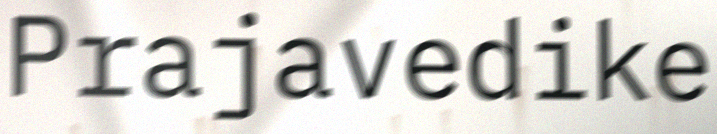
Prajavedike